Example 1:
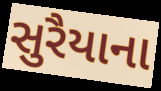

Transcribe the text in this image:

સુરૈયાના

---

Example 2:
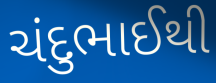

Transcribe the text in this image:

ચંદુભાઈથી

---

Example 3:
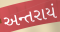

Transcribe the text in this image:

અન્તરાયં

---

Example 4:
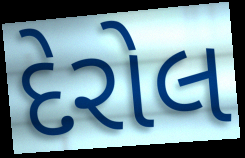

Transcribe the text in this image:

દેરોલ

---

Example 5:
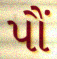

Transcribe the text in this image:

પૌં